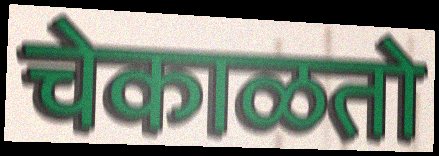
चेकाळतो